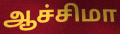
ஆச்சிமா